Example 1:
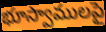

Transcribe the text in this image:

భూస్వాములపై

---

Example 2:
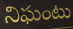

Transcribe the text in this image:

నిఘంటు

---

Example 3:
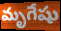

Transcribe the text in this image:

మృగేషు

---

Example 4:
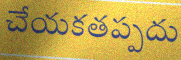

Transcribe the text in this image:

చేయకతప్పదు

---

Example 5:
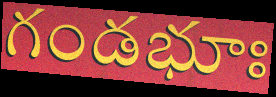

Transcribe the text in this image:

గండభూః